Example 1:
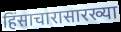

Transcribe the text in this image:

हिंसाचारासारख्या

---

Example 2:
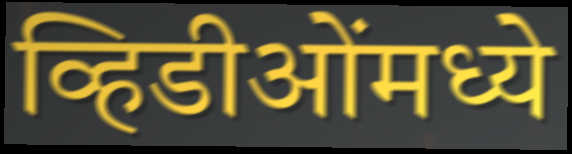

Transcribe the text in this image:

व्हिडीओंमध्ये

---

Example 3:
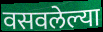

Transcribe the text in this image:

वसवलेल्या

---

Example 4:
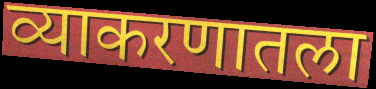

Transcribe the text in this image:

व्याकरणातला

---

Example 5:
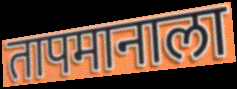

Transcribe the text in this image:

तापमानाला